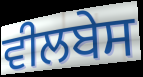
ਵੀਲਬੇਸ